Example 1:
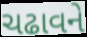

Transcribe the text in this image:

ચઢાવને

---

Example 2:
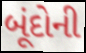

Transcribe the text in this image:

બૂંદોની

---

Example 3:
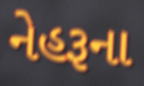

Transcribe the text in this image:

નેહરૂના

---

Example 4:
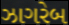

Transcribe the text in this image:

ઝાગરેબ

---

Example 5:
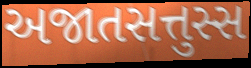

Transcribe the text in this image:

અજાતસત્તુસ્સ